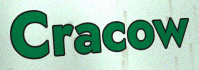
Cracow